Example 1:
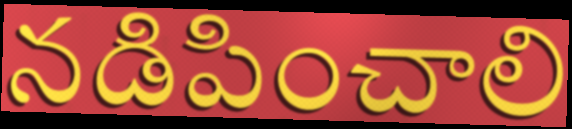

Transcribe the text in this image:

నడిపించాలి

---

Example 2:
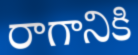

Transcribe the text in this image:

రాగానికి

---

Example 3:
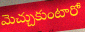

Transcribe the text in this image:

మెచ్చుకుంటారో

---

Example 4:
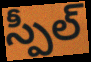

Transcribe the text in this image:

స్పీల్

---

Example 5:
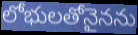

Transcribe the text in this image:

లోభులతోనైనను